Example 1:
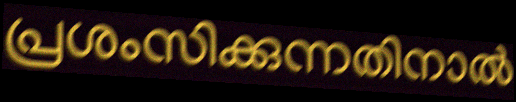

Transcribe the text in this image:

പ്രശംസിക്കുന്നതിനാൽ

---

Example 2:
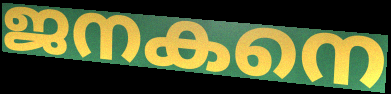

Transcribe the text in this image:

ജനകനെ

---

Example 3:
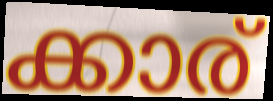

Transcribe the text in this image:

ക്കാര്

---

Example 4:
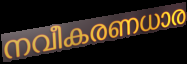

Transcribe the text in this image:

നവീകരണധാര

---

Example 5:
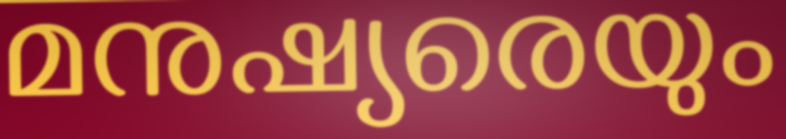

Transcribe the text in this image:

മനുഷ്യരെയും